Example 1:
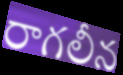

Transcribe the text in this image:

రాగలీన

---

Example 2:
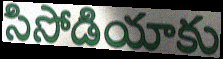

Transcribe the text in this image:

సిసోడియాకు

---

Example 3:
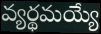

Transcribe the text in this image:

వ్యర్థమయ్యే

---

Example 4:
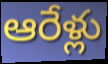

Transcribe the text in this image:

ఆరేళ్లు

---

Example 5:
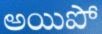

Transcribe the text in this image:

అయిపో